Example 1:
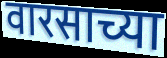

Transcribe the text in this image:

वारसाच्या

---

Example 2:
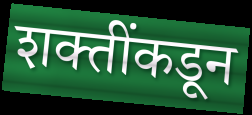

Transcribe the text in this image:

शक्तींकडून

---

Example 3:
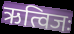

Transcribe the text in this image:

ऋत्विजः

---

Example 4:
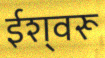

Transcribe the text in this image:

ईश्वरू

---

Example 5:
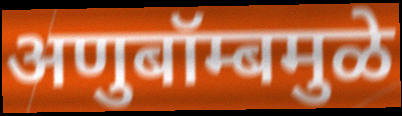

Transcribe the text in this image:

अणुबॉम्बमुळे